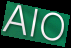
AIO